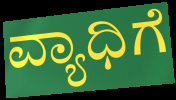
ವ್ಯಾಧಿಗೆ